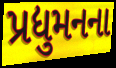
પ્રદ્યુમનના